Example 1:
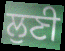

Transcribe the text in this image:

ਲੁਣੀ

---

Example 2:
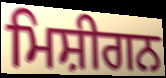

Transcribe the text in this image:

ਮਿਸ਼ੀਗਨ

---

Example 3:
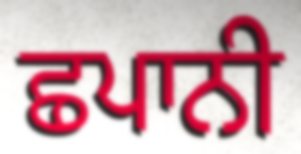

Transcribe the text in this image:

ਛਪਾਨੀ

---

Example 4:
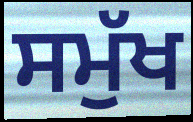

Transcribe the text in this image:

ਸਮੁੱਖ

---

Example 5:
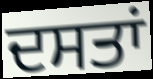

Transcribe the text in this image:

ਦਸਤਾਂ